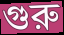
গুরু